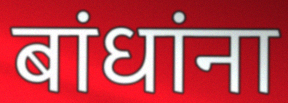
बांधांना